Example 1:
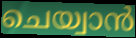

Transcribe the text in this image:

ചെയ്വാൻ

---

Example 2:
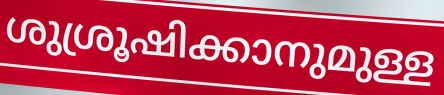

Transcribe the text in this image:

ശുശ്രൂഷിക്കാനുമുള്ള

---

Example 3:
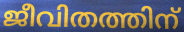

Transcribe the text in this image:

ജീവിതത്തിന്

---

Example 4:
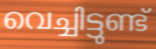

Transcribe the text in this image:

വെച്ചിട്ടുണ്ട്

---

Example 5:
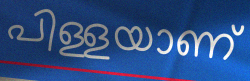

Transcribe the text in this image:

പിള്ളയാണ്